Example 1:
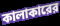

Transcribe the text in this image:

কালাকারের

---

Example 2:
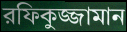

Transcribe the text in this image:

রফিকুজ্জামান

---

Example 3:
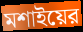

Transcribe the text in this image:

মশাইয়ের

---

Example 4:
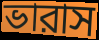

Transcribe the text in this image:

ভারাস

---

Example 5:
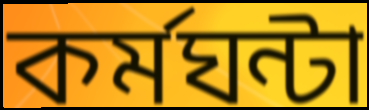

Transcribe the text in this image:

কর্মঘন্টা